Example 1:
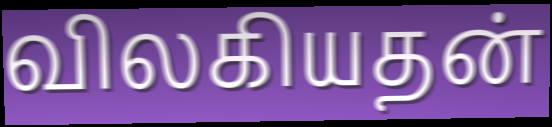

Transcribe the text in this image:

விலகியதன்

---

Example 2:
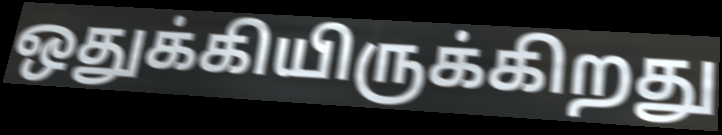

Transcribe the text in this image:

ஒதுக்கியிருக்கிறது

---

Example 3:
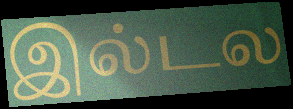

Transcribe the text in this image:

இல்டல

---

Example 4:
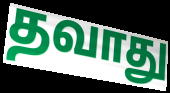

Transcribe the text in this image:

தவாது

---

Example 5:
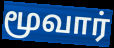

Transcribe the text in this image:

மூவார்